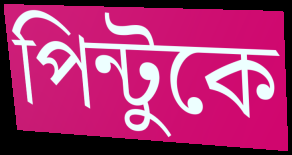
পিন্টুকে